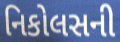
નિકોલસની